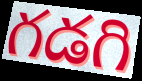
గడగి